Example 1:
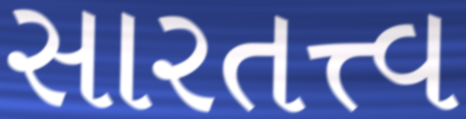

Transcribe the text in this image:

સારતત્ત્વ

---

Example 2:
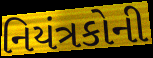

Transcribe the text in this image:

નિયંત્રકોની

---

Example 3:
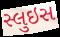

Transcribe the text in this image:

સ્લુઇસ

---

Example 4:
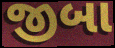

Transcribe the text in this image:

જીબા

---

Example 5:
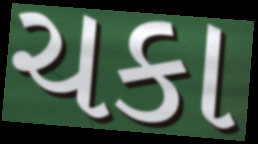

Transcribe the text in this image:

ચકા